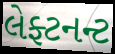
લેફ્ટનન્ટ